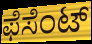
ಫೆಸೆಂಟ್